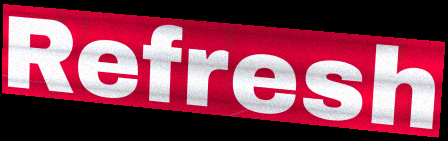
Refresh